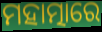
ମହାତ୍ମାରେ